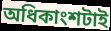
অধিকাংশটাই